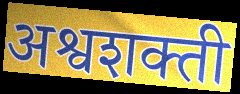
अश्वशक्ती